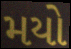
મયો